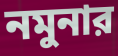
নমুনার